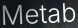
Metab